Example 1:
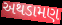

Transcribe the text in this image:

અથડામણ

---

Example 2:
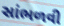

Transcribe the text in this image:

સાંભળવી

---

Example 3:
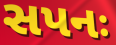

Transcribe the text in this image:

સપનઃ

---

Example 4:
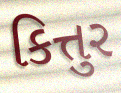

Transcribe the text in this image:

કિત્તુર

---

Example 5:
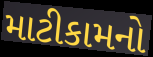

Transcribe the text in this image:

માટીકામનો